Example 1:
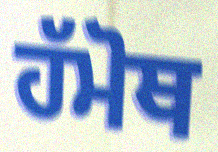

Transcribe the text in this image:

ਹੱਮੋਥ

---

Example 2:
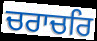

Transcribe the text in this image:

ਚਰਾਚਰਿ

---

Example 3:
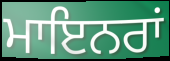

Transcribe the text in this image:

ਮਾਇਨਰਾਂ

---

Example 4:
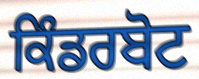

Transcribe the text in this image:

ਕਿੰਡਰਬੋਟ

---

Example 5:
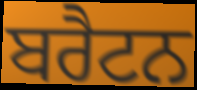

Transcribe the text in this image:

ਬਰੈਟਨ